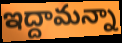
ఇద్దామన్నా